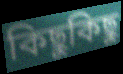
কিছুকিছু